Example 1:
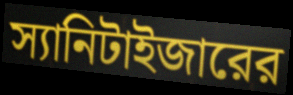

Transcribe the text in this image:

স্যানিটাইজারের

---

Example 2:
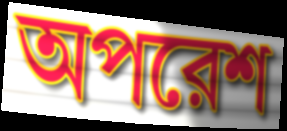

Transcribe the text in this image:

অপরেশ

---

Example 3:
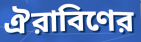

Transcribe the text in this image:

ঐরাবিণের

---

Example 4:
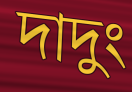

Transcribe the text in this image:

দাদুং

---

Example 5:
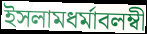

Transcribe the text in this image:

ইসলামধর্মাবলম্বী